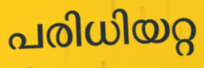
പരിധിയറ്റ